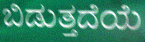
ಬಿಡುತ್ತದೆಯೆ